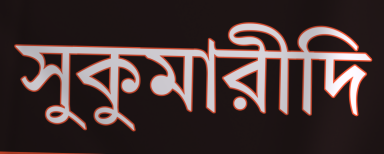
সুকুমারীদি